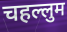
चहल्लुम